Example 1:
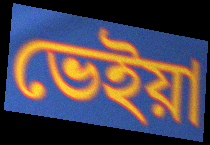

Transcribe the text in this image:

ভেইয়া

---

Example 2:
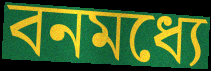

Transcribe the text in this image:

বনমধ্যে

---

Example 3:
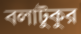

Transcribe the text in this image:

বলাটুকুর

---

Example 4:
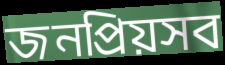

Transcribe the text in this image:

জনপ্রিয়সব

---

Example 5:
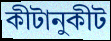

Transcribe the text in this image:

কীটানুকীট